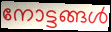
നോട്ടങ്ങൾ